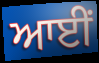
ਆਈਂ